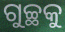
ଗୁଚ୍ଛକୁ